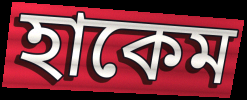
হাকেম